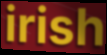
irish